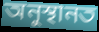
অনুস্থানত